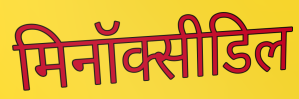
मिनॉक्सीडिल